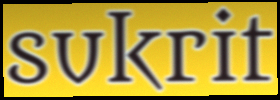
sukrit